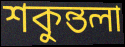
শকুন্তলা